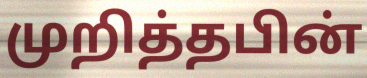
முறித்தபின்